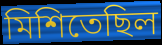
মিশিতেছিল